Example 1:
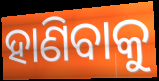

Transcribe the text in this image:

ହାଣିବାକୁ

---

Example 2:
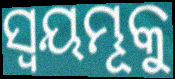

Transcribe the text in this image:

ସ୍ଵୟମ୍ଭୂକୁ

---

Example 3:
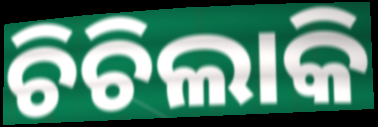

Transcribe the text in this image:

ଚିଚିଲାକି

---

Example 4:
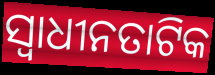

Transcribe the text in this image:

ସ୍ୱାଧୀନତାଟିକ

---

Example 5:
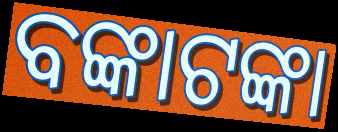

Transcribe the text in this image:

ବଙ୍କାଟଙ୍କା